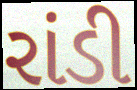
રાંડી